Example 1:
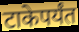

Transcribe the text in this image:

टाकेपर्यंत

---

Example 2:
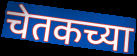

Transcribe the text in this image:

चेतकच्या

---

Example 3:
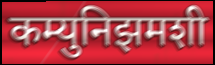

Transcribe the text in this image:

कम्युनिझमशी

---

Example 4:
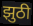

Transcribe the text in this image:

झुठी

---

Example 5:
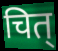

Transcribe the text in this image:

चित्